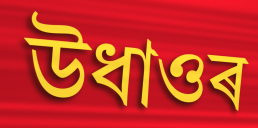
উধাওৰ